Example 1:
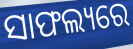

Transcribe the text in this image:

ସାଫଲ୍ୟରେ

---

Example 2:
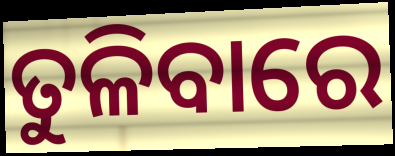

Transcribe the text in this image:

ତୁଳିବାରେ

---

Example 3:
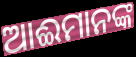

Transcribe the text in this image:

ଆଈମାନଙ୍କ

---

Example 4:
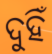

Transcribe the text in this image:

ଦୁହିଁ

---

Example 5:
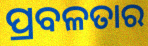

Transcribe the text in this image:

ପ୍ରବଳତାର